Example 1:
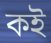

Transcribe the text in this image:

কই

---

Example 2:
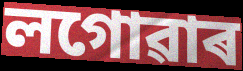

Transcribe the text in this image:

লগোৱাৰ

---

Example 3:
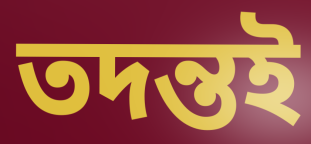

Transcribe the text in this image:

তদন্তই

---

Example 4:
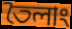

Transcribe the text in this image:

তৈলাং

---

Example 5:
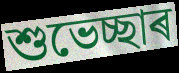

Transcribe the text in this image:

শুভেচ্ছাৰ